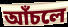
আঁচলে